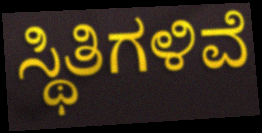
ಸ್ಥಿತಿಗಳಿವೆ